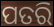
ପତରି